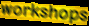
workshops